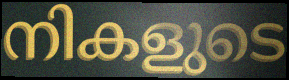
നികളുടെ